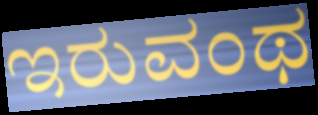
ಇರುವಂಥ